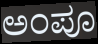
ಅಂಪೂ